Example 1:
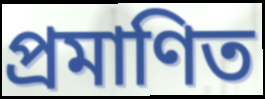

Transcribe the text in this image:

প্রমাণিত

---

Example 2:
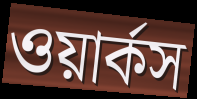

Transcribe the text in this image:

ওয়ার্কস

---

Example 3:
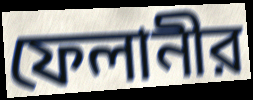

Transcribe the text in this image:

ফেলানীর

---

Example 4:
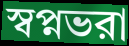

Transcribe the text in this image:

স্বপ্নভরা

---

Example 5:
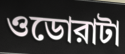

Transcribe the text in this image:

ওডোরাটা